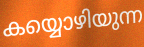
കയ്യൊഴിയുന്ന